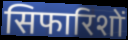
सिफारिशों